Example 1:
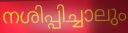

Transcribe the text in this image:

നശിപ്പിച്ചാലും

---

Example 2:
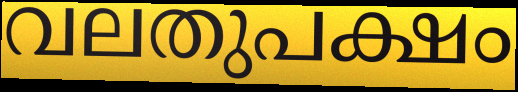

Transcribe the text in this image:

വലതുപക്ഷം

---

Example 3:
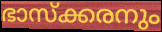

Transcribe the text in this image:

ഭാസ്ക്കരനും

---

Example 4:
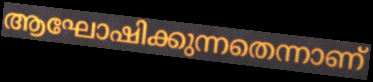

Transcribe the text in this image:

ആഘോഷിക്കുന്നതെന്നാണ്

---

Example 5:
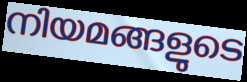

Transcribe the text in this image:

നിയമങ്ങളുടെ